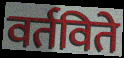
वर्तविते